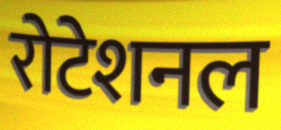
रोटेशनल